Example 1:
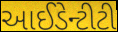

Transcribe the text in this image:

આઈડેન્ટીટી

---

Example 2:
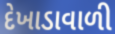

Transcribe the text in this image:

દેખાડાવાળી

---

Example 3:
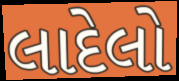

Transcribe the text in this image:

લાદેલો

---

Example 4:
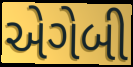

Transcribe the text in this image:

એગેબી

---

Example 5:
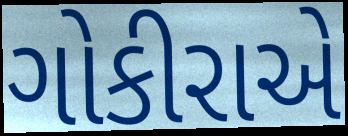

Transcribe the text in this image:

ગોકીરાએ